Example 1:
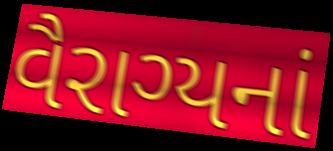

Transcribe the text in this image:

વૈરાગ્યનાં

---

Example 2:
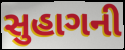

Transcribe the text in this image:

સુહાગની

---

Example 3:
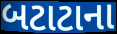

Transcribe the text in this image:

બટાટાના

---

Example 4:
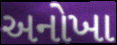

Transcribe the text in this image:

અનોખા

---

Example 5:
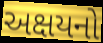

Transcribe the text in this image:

અક્ષયનો